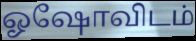
ஓஷோவிடம்